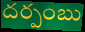
దర్పంబు